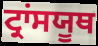
ਟ੍ਰਾਂਸਯੂਥ